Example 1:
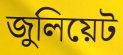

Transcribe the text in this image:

জুলিয়েট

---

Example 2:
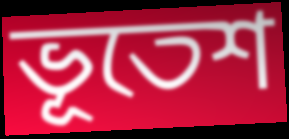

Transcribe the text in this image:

ভূতেশ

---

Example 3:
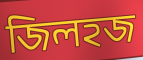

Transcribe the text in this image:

জিলহজ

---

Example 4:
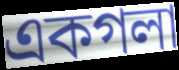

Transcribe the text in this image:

একগলা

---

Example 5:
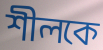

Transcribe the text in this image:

শীলকে